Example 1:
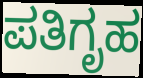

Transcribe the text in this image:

ಪತಿಗೃಹ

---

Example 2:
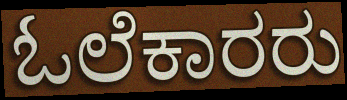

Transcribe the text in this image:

ಓಲೆಕಾರರು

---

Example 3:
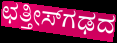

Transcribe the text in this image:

ಛತ್ತೀಸ್‌ಗಢದ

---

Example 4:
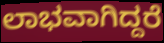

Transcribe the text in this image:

ಲಾಭವಾಗಿದ್ದರೆ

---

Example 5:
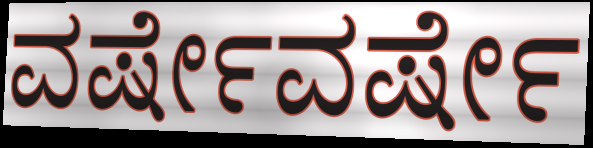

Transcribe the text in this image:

ವರ್ಷೇವರ್ಷೇ